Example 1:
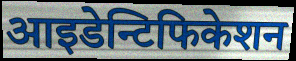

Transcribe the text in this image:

आइडेन्टिफिकेशन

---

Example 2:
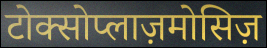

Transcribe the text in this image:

टोक्सोप्लाज़मोसिज़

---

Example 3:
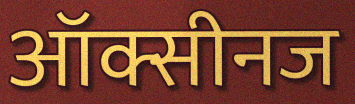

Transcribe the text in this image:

ऑक्सीनज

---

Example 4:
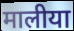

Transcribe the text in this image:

मालीया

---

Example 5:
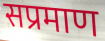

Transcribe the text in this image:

सप्रमाण